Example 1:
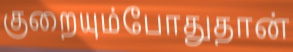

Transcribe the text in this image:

குறையும்போதுதான்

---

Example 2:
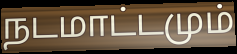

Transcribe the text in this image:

நடமாட்டமும்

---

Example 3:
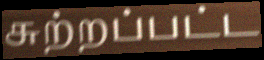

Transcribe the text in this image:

சுற்றப்பட்ட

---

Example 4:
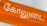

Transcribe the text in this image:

கோலுடை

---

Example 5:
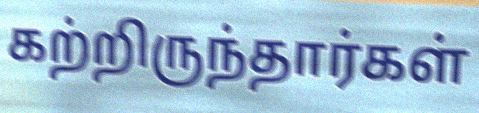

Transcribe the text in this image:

கற்றிருந்தார்கள்